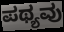
ಪಥ್ಯವು